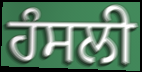
ਹੰਸਲੀ